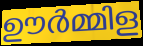
ഊർമ്മിള